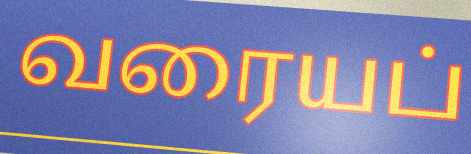
வரையப்